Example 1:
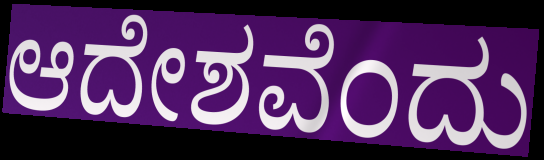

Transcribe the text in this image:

ಆದೇಶವೆಂದು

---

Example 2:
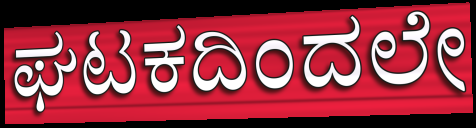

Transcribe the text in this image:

ಘಟಕದಿಂದಲೇ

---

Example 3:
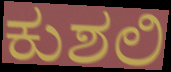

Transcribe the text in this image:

ಕುಶಲಿ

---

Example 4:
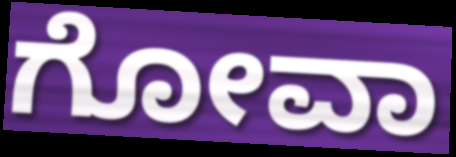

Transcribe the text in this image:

ಗೋವಾ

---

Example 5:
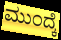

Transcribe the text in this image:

ಮುಂದ್ಕೆ